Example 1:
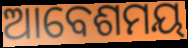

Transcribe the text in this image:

ଆବେଶମୟ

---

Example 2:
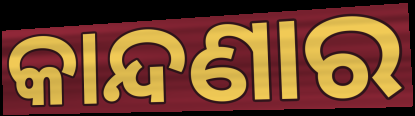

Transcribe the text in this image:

କାନ୍ଦଣାର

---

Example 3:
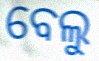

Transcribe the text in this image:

ବେଲୁ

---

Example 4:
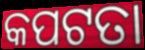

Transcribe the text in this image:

କପଟତା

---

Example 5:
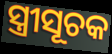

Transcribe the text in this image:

ସ୍ତ୍ରୀସୂଚକ